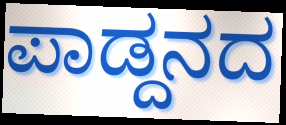
ಪಾಡ್ದನದ